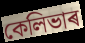
কেলিভাৰ